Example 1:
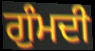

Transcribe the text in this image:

ਗੁੰਮਦੀ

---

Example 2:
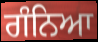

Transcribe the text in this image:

ਗੰਨਿਆ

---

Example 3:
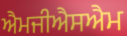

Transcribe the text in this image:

ਐਮਜੀਐਸਐਮ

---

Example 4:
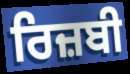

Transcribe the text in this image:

ਰਿਜ਼ਬੀ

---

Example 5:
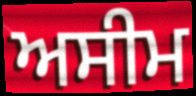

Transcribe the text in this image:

ਅਸੀਮ